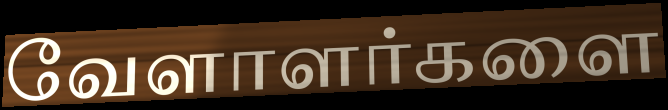
வேளாளர்களை